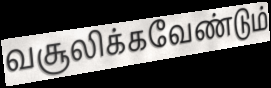
வசூலிக்கவேண்டும்